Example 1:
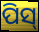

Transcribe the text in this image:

ପିସ୍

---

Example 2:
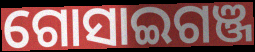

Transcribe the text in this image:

ଗୋସାଇଗଞ୍ଜ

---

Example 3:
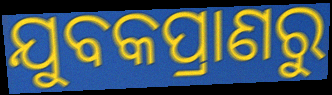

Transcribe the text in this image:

ଯୁବକପ୍ରାଣରୁ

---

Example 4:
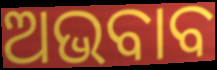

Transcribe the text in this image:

ଅଭବାବ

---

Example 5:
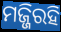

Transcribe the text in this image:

ମଜ୍ଜିରହି